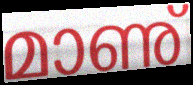
മാണു്